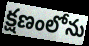
క్షణంలోను